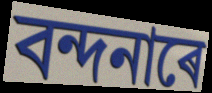
বন্দনাৰে